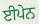
ਈਪੇਨ